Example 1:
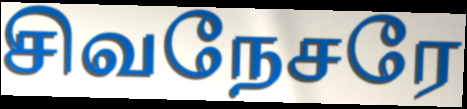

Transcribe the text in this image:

சிவநேசரே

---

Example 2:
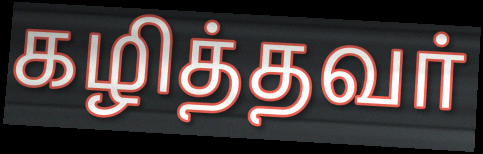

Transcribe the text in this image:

கழித்தவர்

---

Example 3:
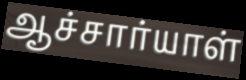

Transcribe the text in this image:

ஆச்சார்யாள்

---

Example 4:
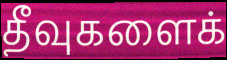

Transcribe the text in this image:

தீவுகளைக்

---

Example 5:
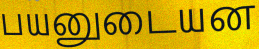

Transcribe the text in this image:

பயனுடையன